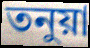
তনুয়া